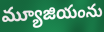
మ్యూజియంను